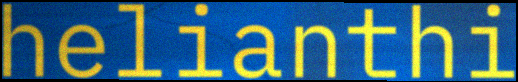
helianthi